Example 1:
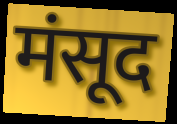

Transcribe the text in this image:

मंसूद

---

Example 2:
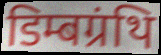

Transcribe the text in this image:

डिम्बग्रंथि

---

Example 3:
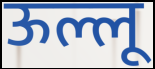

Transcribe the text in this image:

ऊल्लू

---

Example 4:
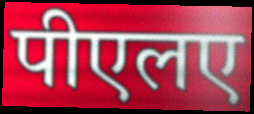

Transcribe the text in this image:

पीएलए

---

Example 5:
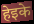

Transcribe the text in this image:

हेइके